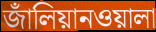
জাঁলিয়ানওয়ালা